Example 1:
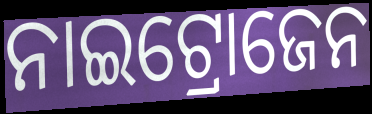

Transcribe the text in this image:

ନାଇଟ୍ରୋଜେନ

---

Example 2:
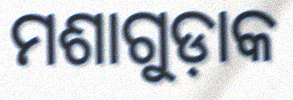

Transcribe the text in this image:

ମଶାଗୁଡ଼ାକ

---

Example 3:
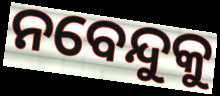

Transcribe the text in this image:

ନବେନ୍ଦୁକୁ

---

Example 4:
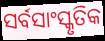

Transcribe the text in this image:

ସର୍ବସାଂସ୍କୃତିକ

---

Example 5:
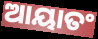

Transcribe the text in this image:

ଆୟାତଂ